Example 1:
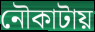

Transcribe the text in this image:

নৌকাটায়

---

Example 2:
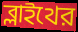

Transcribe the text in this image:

ব্লাইথের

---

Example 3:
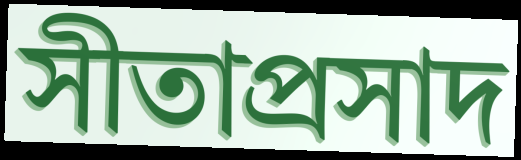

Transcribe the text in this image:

সীতাপ্রসাদ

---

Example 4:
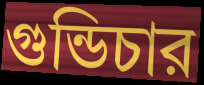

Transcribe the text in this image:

গুন্ডিচার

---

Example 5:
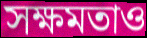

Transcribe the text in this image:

সক্ষমতাও